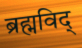
ब्रह्मविद्